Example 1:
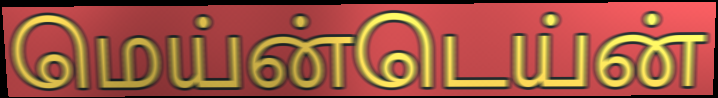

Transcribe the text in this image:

மெய்ன்டெய்ன்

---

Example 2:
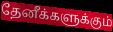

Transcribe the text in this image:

தேனீக்களுக்கும்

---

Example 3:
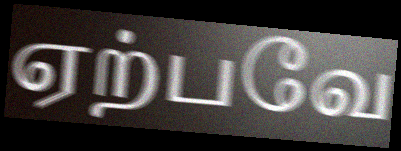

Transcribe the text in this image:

ஏற்பவே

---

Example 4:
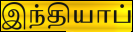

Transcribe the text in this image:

இந்தியாப்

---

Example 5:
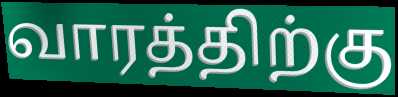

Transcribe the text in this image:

வாரத்திற்கு